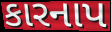
કારનાપ